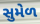
સુમેળ